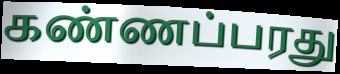
கண்ணப்பரது